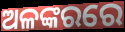
ଅଳଙ୍କରରେ